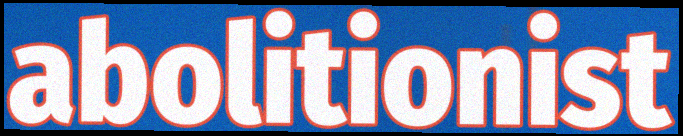
abolitionist